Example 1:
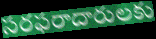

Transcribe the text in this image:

సరఫరాదారులకు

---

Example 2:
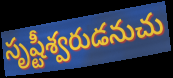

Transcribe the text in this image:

సృష్టీశ్వరుడనుచు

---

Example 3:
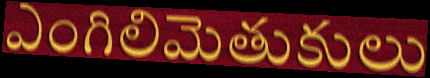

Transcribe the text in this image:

ఎంగిలిమెతుకులు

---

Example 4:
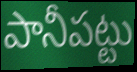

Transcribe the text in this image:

పానీపట్టు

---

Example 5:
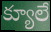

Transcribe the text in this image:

క్యూలే